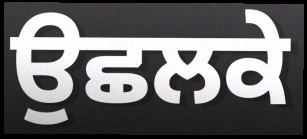
ਉਛਲਕੇ